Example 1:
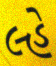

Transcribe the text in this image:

લ્હે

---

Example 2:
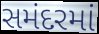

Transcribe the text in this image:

સમંદરમાં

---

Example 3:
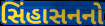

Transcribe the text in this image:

સિંહાસનનો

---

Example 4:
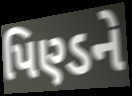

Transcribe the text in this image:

પિણ્ડને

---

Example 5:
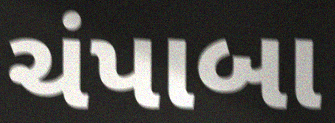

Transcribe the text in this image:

ચંપાબા